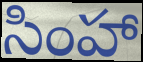
సింహా